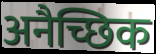
अनैच्छिक